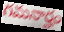
గమనార్హం